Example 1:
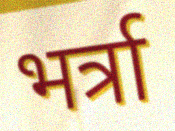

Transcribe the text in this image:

भर्त्रा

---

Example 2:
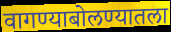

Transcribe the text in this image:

वागण्याबोलण्यातला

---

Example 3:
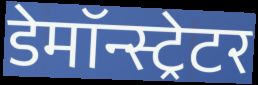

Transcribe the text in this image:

डेमॉन्स्ट्रेटर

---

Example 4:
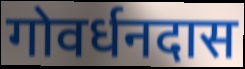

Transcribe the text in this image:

गोवर्धनदास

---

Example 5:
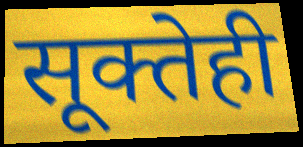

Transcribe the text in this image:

सूक्तेही